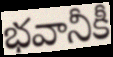
భవానీకీ